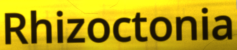
Rhizoctonia